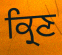
ਕ੍ਰਿਣ